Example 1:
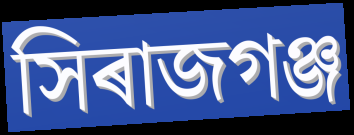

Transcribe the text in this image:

সিৰাজগঞ্জ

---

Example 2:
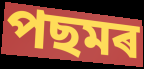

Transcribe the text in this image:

পছমৰ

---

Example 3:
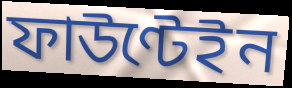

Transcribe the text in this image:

ফাউণ্টেইন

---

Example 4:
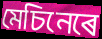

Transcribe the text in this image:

মেচিনেৰে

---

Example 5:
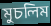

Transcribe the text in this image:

মুচলিম